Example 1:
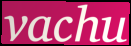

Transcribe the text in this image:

vachu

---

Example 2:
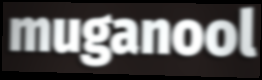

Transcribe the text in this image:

muganool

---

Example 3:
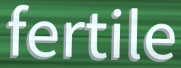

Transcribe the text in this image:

fertile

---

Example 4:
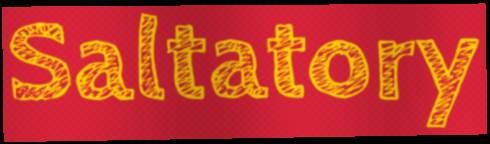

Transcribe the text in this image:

Saltatory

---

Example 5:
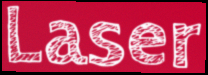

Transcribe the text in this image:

Laser